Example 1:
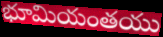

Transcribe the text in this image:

భూమియంతయు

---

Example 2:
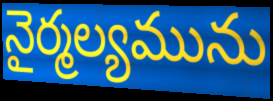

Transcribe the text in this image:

నైర్మల్యమును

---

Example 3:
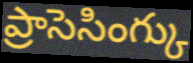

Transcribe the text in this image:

ప్రాసెసింగ్కు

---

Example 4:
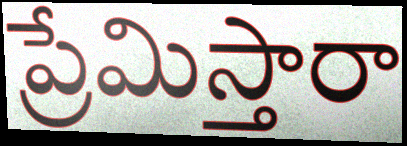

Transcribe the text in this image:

ప్రేమిస్తారా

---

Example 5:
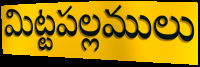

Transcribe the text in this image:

మిట్టపల్లములు